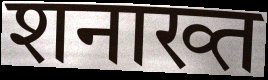
शनाख्त